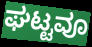
ಘಟ್ಟವೂ